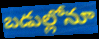
బడుల్లోనూ